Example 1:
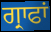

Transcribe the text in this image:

ਗ੍ਰਾਫਾਂ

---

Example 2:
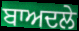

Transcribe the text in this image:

ਬਾਅਦਲੇ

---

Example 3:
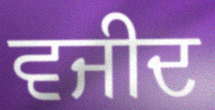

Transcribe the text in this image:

ਵਜੀਦ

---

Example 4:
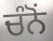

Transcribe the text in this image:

ਚੰਨੋਂ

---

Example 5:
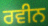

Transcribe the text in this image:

ਰਵੀਨ